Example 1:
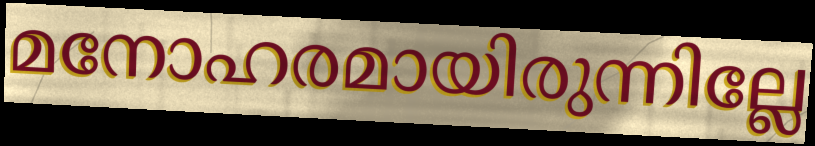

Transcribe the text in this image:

മനോഹരമായിരുന്നില്ലേ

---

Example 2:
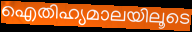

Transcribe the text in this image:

ഐതിഹ്യമാലയിലൂടെ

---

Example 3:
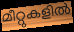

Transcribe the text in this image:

മീറ്റുകളിൽ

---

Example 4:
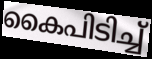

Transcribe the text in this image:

കൈപിടിച്ച്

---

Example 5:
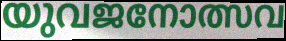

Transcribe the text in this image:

യുവജനോത്സവ